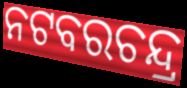
ନଟବରଚନ୍ଦ୍ର